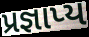
પ્રજ્ઞાપ્ય